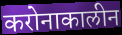
करोनाकालीन